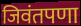
जिवंतपणा